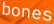
bones